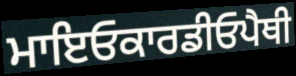
ਮਾਇਓਕਾਰਡੀਓਪੈਥੀ